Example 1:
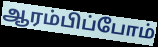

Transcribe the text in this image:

ஆரம்பிப்போம்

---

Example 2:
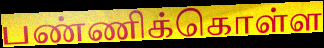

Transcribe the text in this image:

பண்ணிக்கொள்ள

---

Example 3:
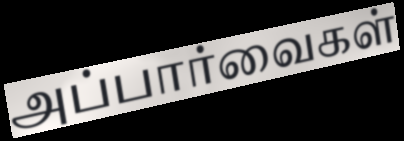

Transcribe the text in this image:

அப்பார்வைகள்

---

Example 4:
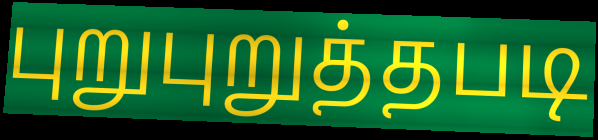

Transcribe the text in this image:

புறுபுறுத்தபடி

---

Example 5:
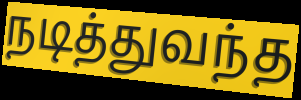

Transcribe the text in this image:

நடித்துவந்த